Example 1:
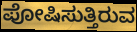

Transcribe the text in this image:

ಪೋಷಿಸುತ್ತಿರುವ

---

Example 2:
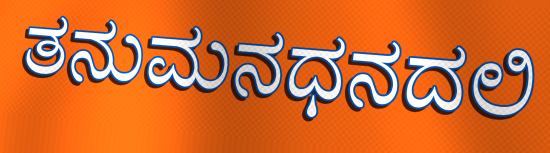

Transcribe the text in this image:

ತನುಮನಧನದಲಿ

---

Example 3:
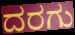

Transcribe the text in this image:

ದರಗು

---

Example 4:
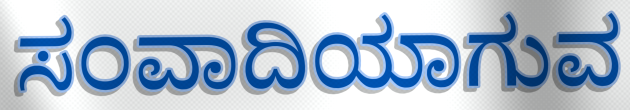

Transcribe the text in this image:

ಸಂವಾದಿಯಾಗುವ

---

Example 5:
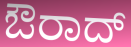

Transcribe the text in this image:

ಔರಾದ್